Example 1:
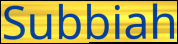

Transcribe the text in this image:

Subbiah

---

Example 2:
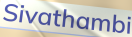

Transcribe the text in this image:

Sivathambi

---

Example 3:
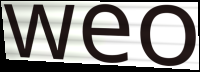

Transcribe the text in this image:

weo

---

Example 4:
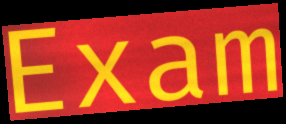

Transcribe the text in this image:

Exam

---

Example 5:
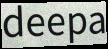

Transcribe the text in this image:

deepa